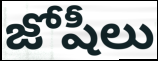
జోషీలు